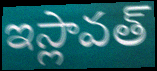
ఇస్లావత్